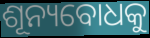
ଶୂନ୍ୟବୋଧକୁ